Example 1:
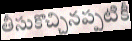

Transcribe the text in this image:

తీసుకొచ్చినప్పటికీ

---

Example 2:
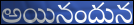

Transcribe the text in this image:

అయినందున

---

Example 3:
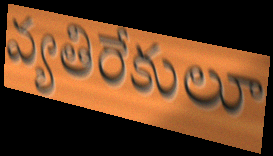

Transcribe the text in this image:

వ్యతిరేకులూ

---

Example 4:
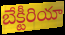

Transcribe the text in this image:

బేక్టీరియా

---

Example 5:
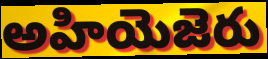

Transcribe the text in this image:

అహియెజెరు